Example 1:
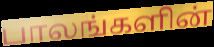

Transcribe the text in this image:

பாலங்களின்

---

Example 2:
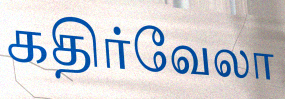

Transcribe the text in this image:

கதிர்வேலா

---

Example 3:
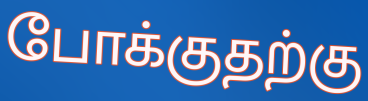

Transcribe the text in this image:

போக்குதற்கு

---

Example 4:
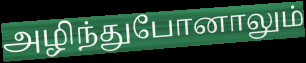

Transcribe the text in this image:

அழிந்துபோனாலும்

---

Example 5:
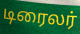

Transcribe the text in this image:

டிரைலர்